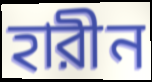
হারীন